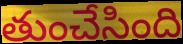
తుంచేసింది